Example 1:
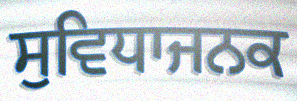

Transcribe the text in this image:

ਸੁਵਿਧਾਜਨਕ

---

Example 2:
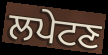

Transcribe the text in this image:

ਲਪੇਟਣ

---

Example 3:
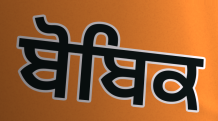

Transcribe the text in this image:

ਬੋਬਿਕ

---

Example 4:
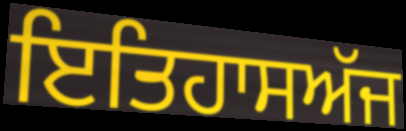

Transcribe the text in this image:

ਇਤਿਹਾਸਅੱਜ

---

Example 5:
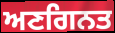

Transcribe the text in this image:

ਅਣਗਿਨਤ